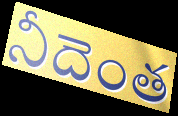
నీదెంత